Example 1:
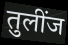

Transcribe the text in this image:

तुलींज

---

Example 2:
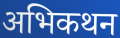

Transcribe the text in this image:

अभिकथन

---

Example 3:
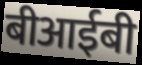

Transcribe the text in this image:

बीआईबी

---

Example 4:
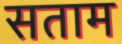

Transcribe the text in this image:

सताम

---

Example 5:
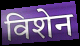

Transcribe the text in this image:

विशेन